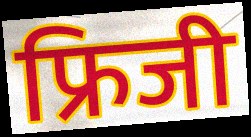
फ्रिजी